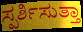
ಸ್ಪರ್ಶಿಸುತ್ತಾ